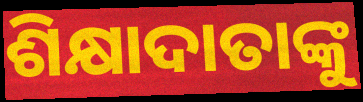
ଶିକ୍ଷାଦାତାଙ୍କୁ